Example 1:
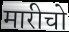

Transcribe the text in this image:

मारीचो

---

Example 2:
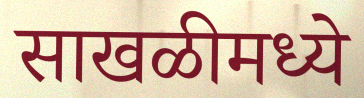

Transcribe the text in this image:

साखळीमध्ये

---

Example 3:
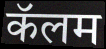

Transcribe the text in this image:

कॅलम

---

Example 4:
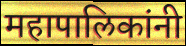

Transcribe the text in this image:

महापालिकांनी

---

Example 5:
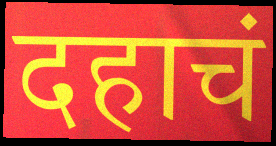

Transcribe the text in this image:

दहाचं